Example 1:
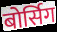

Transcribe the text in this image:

बोर्सिग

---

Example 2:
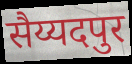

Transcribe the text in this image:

सैय्यदपुर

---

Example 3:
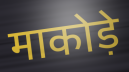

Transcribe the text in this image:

माकोड़े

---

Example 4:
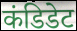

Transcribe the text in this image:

कंडिडेट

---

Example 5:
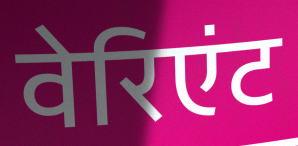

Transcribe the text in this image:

वेरिएंट